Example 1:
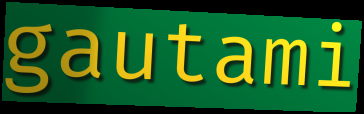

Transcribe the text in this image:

gautami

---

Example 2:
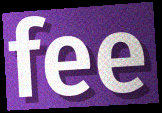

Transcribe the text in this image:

fee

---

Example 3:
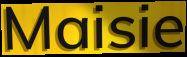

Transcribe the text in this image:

Maisie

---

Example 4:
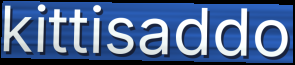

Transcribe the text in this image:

kittisaddo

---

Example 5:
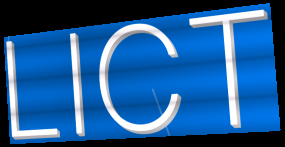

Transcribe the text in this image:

LICT